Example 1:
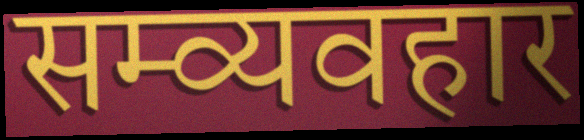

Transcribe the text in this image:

सम्व्यवहार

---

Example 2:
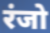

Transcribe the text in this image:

रंजो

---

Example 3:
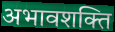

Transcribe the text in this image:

अभावशक्ति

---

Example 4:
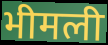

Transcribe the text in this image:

भीमली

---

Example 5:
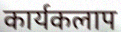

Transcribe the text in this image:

कार्यकलाप